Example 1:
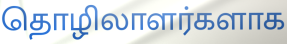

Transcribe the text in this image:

தொழிலாளர்களாக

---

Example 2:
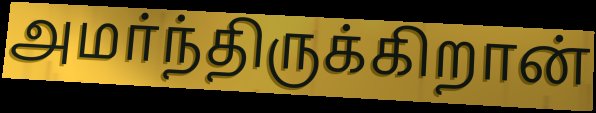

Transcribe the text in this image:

அமர்ந்திருக்கிறான்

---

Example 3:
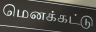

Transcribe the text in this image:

மெனக்கட்டு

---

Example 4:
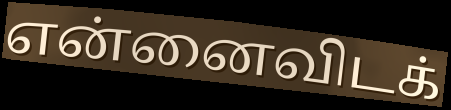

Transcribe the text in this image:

என்னைவிடக்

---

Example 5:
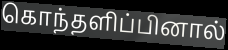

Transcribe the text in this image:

கொந்தளிப்பினால்